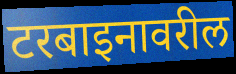
टरबाइनावरील